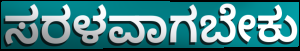
ಸರಳವಾಗಬೇಕು